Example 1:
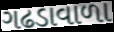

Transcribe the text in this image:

ગઢડાવાળા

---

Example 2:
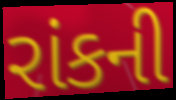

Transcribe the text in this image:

રાંકની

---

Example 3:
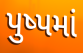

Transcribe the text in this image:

પુષ્પમાં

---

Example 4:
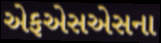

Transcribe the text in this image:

એફએસએસના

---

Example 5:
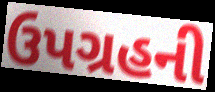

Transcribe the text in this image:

ઉપગ્રહની